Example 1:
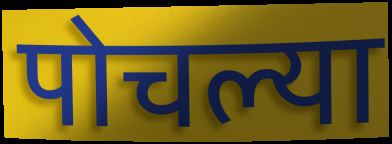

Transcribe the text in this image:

पोचल्या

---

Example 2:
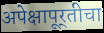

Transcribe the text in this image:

अपेक्षापूर्तीचा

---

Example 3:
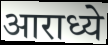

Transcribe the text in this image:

आराध्ये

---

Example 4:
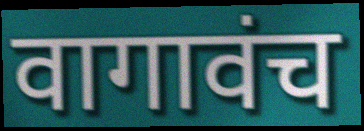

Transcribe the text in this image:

वागावंच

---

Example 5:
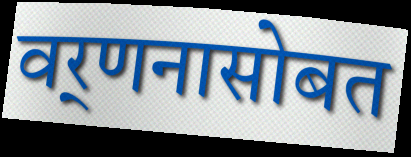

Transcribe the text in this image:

वर्णनासोबत